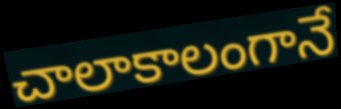
చాలాకాలంగానే